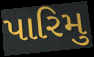
પારિમુ